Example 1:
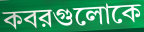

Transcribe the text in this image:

কবরগুলোকে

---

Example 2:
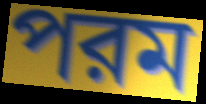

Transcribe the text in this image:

পরম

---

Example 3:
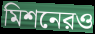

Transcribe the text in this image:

মিশনেরও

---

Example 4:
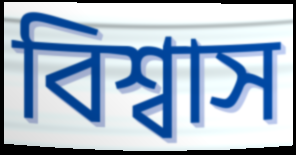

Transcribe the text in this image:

বিশ্বাস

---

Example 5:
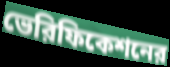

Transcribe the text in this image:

ভেরিফিকেশনের